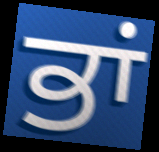
ਭਾਂ